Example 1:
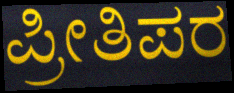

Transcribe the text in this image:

ಪ್ರೀತಿಪರ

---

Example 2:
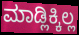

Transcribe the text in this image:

ಮಾಡ್ಲಿಕ್ಕಿಲ್ಲ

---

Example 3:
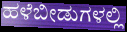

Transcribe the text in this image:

ಹಳೆಬೀಡುಗಳಲ್ಲಿ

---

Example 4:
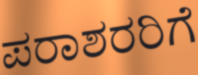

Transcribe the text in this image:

ಪರಾಶರರಿಗೆ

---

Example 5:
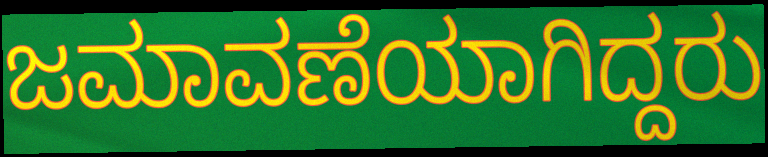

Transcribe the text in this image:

ಜಮಾವಣೆಯಾಗಿದ್ದರು